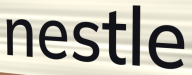
nestle